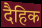
दैहिक